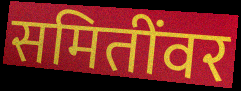
समितींवर